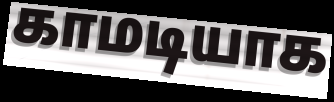
காமடியாக